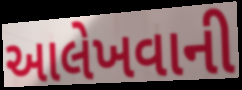
આલેખવાની